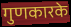
गुणकारके